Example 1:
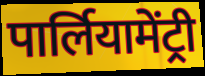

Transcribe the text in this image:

पार्लियामेंट्री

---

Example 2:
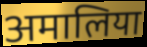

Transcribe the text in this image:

अमालिया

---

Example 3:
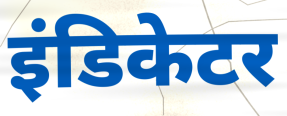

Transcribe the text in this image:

इंडिकेटर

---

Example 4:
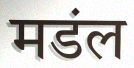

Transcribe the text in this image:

मडंल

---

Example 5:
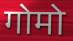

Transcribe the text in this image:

गोमो